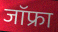
जॉफ्रा